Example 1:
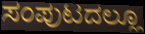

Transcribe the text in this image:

ಸಂಪುಟದಲ್ಲೂ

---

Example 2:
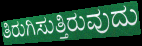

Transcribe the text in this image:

ತಿರುಗಿಸುತ್ತಿರುವುದು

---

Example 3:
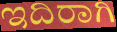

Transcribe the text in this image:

ಇದಿರಾಗಿ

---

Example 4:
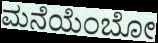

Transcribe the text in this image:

ಮನೆಯೆಂಬೋ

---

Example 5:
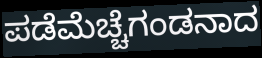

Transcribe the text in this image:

ಪಡೆಮೆಚ್ಚೆಗಂಡನಾದ